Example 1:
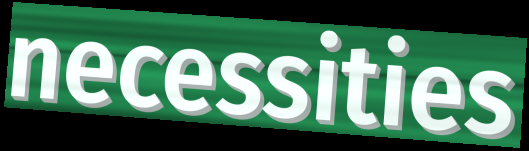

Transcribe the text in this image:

necessities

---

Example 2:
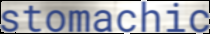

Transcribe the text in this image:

stomachic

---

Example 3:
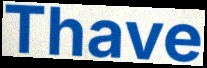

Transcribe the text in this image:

Thave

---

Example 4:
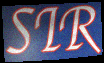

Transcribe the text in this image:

SIR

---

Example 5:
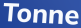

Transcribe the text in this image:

Tonne